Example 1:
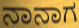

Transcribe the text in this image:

ನಾನಾಗ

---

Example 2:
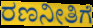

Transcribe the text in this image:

ರಣನೀತಿಗೆ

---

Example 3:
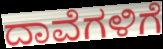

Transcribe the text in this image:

ದಾವೆಗಳಿಗೆ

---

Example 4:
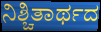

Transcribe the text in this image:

ನಿಶ್ಚಿತಾರ್ಥದ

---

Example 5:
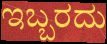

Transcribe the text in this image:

ಇಬ್ಬರದು